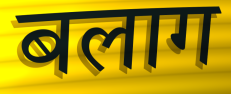
बलाग